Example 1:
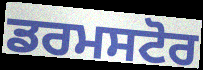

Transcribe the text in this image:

ਡਰਮਸਟੋਰ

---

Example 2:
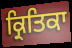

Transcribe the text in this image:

ਕ੍ਰਿਤਿਕਾ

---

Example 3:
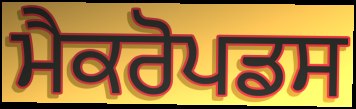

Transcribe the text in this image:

ਮੈਕਰੋਪਡਸ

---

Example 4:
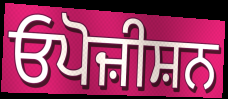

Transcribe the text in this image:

ਓਪੋਜ਼ੀਸ਼ਨ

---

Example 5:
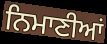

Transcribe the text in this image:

ਨਿਮਾਣੀਆਂ